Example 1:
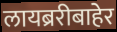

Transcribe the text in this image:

लायब्ररीबाहेर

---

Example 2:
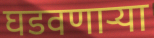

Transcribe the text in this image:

घडवणार्‍या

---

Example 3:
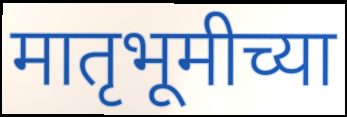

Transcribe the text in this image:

मातृभूमीच्या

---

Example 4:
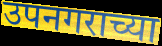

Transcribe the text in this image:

उपनगराच्या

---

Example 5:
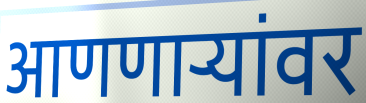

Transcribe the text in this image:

आणणाऱ्यांवर